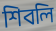
শিবলি